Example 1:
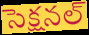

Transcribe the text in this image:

సెక్షనల్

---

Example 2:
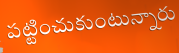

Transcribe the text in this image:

పట్టించుకుంటున్నారు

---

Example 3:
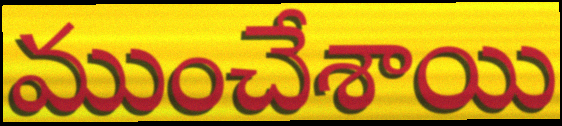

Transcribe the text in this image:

ముంచేశాయి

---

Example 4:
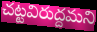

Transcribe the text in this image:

చట్టవిరుద్దమని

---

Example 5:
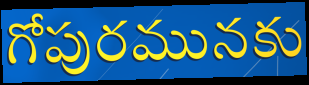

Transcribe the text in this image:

గోపురమునకు